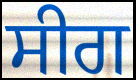
ਸੀਗ